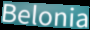
Belonia